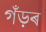
গঁড়ৰ